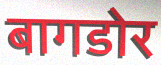
बागडोर